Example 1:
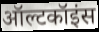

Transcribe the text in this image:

ऑल्टकॉइंस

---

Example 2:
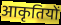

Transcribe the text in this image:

आकृतियों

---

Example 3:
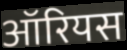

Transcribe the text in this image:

ऑरियस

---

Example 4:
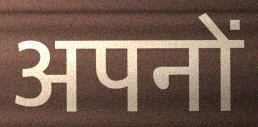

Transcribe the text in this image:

अपनों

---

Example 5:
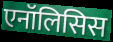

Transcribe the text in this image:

एनॉलिसिस